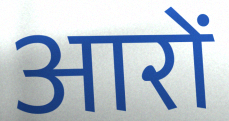
आरों